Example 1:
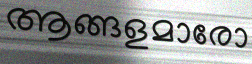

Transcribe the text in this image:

ആങ്ങളമാരോ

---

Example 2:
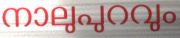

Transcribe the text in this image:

നാലുപുറവും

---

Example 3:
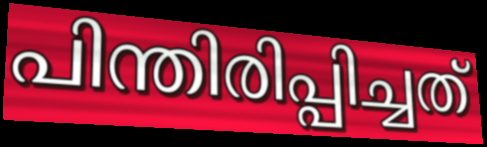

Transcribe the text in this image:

പിന്തിരിപ്പിച്ചത്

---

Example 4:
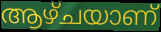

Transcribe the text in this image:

ആഴ്ചയാണ്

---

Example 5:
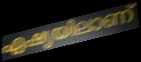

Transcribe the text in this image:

ഏഷ്യയിലാണ്